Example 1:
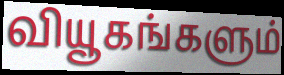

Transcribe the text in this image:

வியூகங்களும்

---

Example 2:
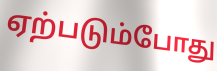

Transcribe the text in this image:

ஏற்படும்போது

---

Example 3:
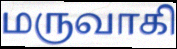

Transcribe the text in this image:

மருவாகி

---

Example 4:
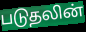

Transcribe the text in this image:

படுதலின்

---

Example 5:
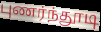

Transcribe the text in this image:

புணர்ந்தூடி